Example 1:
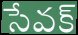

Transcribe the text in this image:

సేవక్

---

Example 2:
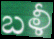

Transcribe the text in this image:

బళీ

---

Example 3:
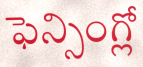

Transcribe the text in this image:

ఫెన్సింగ్లో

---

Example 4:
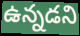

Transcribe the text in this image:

ఉన్నడని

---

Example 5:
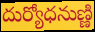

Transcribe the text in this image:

దుర్యోధనుణ్ణి